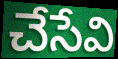
చేసేవి